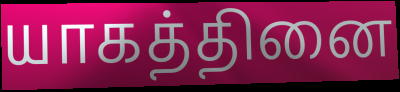
யாகத்தினை